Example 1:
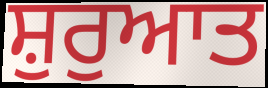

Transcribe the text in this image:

ਸ਼ੁਰੁਆਤ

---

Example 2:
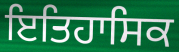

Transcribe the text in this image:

ਇਤਿਹਾਸਿਕ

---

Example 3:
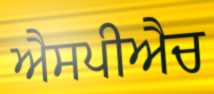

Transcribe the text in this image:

ਐਸਪੀਐਚ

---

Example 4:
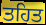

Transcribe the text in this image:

ਤਹਿਤ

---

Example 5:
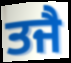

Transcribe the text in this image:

ਤਜੈ